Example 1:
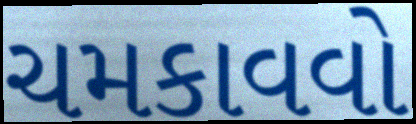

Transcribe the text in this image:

ચમકાવવો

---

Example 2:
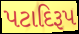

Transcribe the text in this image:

પટાદિરૂપ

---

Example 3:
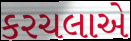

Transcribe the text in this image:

કરચલાએ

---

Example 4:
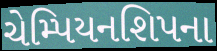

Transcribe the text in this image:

ચેમ્પિયનશિપના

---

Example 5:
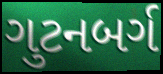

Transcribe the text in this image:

ગુટનબર્ગ